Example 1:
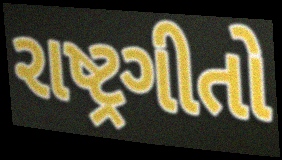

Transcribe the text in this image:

રાષ્ટ્રગીતો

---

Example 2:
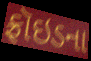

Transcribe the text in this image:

ફ્રૉઇડના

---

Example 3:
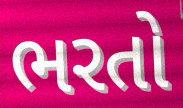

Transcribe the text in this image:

ભરતો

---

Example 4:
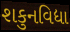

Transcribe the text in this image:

શકુનવિદ્યા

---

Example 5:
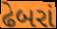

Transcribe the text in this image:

ઢેબરાં